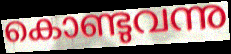
കൊണ്ടുവന്നു